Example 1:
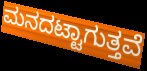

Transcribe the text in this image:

ಮನದಟ್ಟಾಗುತ್ತವೆ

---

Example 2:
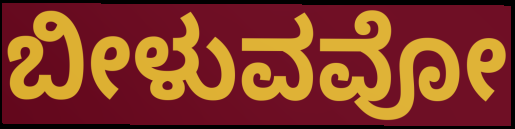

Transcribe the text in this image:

ಬೀಳುವವೋ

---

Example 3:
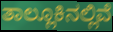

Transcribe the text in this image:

ತಾಲ್ಲೂಕಿನಲ್ಲಿವೆ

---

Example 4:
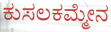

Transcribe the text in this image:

ಕುಸಲಕಮ್ಮೇನ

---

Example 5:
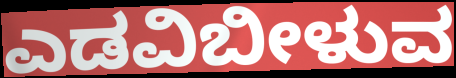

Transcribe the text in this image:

ಎಡವಿಬೀಳುವ